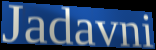
Jadavni